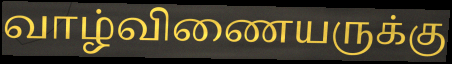
வாழ்விணையருக்கு